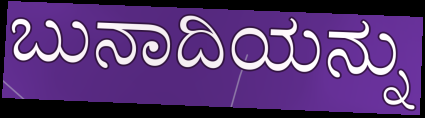
ಬುನಾದಿಯನ್ನು